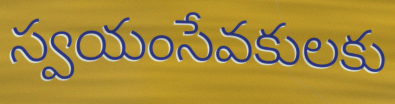
స్వయంసేవకులకు